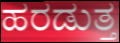
ಹರಡುತ್ತ